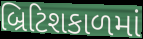
બ્રિટિશકાળમાં